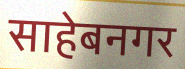
साहेबनगर